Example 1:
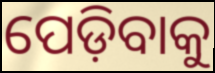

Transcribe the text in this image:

ପେଡ଼ିବାକୁ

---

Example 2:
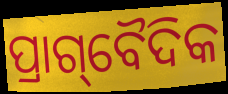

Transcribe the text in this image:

ପ୍ରାଗ୍‌ବୈଦିକ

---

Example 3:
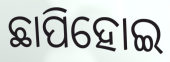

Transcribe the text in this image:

ଛାପିହୋଇ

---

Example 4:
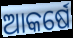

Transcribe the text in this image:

ଆକର୍ଷେ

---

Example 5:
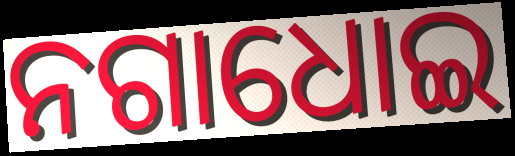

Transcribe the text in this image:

ନଗାଧୋଇ